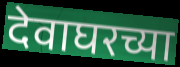
देवाघरच्या